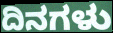
ದಿನಗಳು